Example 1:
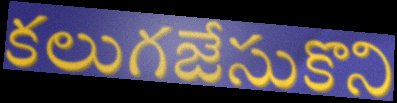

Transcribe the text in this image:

కలుగజేసుకొని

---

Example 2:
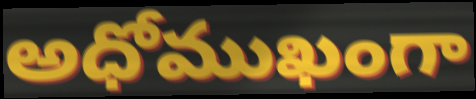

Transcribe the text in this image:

అధోముఖంగా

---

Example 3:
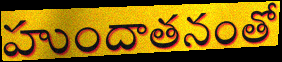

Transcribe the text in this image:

హుందాతనంతో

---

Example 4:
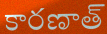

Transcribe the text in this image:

కారణాత్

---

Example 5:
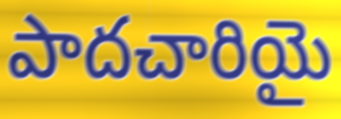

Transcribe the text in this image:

పాదచారియై